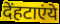
देंहटाएंये